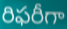
రిఫరీగా